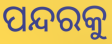
ପନ୍ଦରକୁ